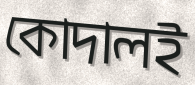
কোদালই